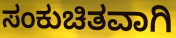
ಸಂಕುಚಿತವಾಗಿ